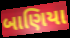
બાણિયા